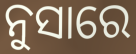
ନୁସାରେ